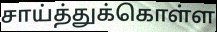
சாய்த்துக்கொள்ள